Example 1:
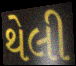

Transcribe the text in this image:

થેલી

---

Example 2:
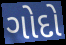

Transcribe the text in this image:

ગોદો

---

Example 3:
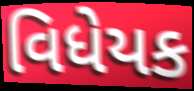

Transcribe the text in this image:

વિધેયક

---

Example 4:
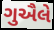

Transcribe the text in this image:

ગુઐલે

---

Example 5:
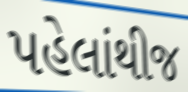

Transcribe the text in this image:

પહેલાંથીજ